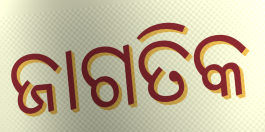
ଜାଗତିକ